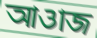
আওাজ